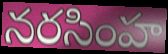
నరసింహ